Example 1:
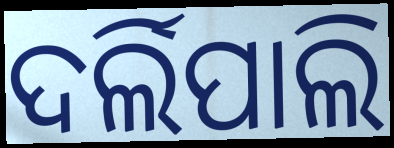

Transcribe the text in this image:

ଦର୍ଲିପାଲି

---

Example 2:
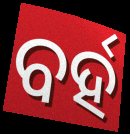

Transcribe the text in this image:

ବର୍ହ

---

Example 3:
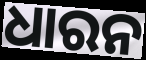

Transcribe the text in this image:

ଧାରନ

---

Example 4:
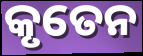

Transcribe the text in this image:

କୃତେନ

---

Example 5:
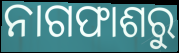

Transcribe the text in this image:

ନାଗଫାଶରୁ